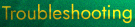
Troubleshooting